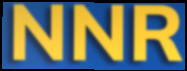
NNR